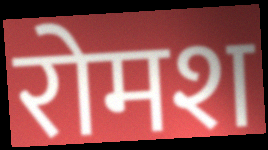
रोमश